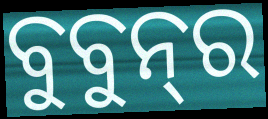
ବୁବୁନ୍‌ର